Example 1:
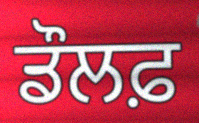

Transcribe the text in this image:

ਡੌਲਫ਼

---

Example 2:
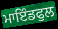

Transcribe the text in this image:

ਮਾਇੰਡਫੁਲ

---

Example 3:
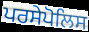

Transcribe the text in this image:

ਪਰਸੇਪੋਲਿਸ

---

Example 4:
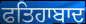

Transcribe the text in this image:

ਫਤਿਹਾਬਾਦ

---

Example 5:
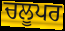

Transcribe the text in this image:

ਚਲੂਪਰ